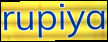
rupiya